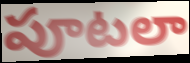
పూటలా